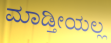
ಮಾಡ್ತೀಯಲ್ಲ